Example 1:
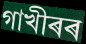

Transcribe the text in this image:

গাখীৰৰ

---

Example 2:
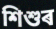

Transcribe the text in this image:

শিশুৰ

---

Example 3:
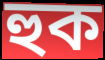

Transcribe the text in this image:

হুক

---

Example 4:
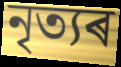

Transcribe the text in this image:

নৃত্যৰ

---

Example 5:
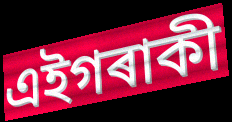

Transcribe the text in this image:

এইগৰাকী